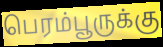
பெரம்பூருக்கு